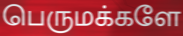
பெருமக்களே